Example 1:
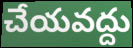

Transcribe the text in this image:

చేయవద్దు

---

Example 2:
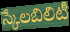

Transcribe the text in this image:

స్కేలబిలిటీ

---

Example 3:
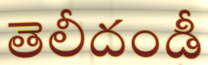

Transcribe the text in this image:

తెలీదండీ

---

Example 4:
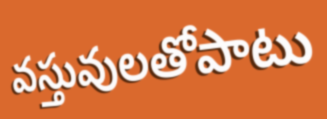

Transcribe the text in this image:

వస్తువులతోపాటు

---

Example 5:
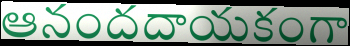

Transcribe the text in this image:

ఆనందదాయకంగా